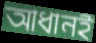
আধানই